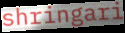
shringari